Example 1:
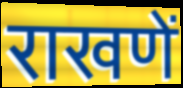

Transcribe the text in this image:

राखणें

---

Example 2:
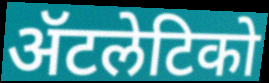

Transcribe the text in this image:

ॲटलेटिको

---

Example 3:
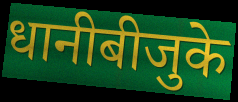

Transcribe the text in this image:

धानीबीजुके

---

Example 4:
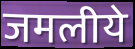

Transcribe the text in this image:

जमलीये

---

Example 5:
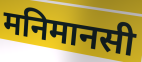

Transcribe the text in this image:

मनिमानसी